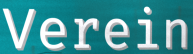
Verein